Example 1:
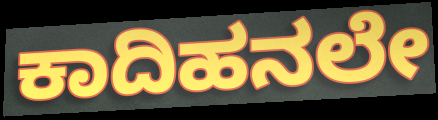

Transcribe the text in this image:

ಕಾದಿಹನಲೇ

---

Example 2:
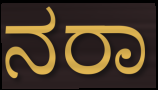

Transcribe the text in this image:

ನರಾ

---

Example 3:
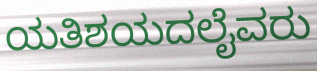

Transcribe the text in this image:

ಯತಿಶಯದಲೈವರು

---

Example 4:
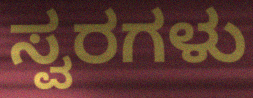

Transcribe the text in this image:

ಸ್ವರಗಳು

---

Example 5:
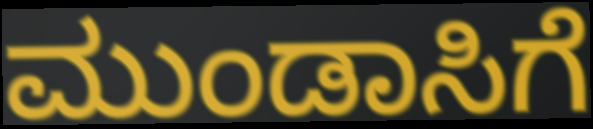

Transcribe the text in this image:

ಮುಂಡಾಸಿಗೆ